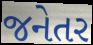
જનેતર